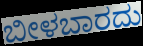
ಬೀಳಬಾರದು